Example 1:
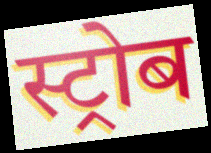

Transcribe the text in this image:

स्ट्रोब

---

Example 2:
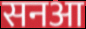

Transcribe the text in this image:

सनआ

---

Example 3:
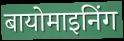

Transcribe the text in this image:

बायोमाइनिंग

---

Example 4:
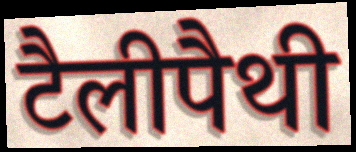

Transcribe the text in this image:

टैलीपैथी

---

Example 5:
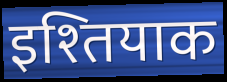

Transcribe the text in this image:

इश्तियाक